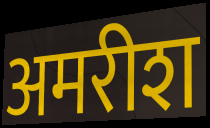
अमरीश